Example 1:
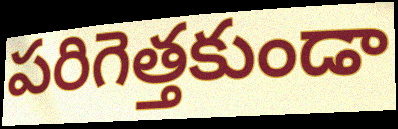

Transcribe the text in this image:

పరిగెత్తకుండా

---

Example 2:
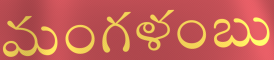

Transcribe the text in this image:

మంగళంబు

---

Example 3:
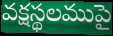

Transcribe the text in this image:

వక్షస్థలముపై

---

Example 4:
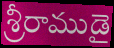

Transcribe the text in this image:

శ్రీరాముడై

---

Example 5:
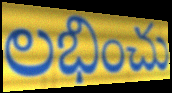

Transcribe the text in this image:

లభించు